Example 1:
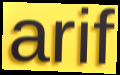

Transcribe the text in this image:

arif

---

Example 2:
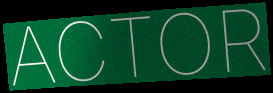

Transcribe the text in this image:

ACTOR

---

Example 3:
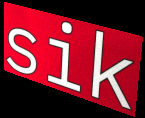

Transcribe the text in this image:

sik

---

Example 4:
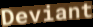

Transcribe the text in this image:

Deviant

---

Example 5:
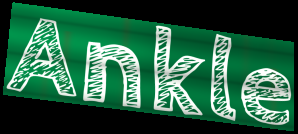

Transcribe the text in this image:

Ankle